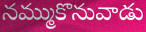
నమ్ముకొనువాడు